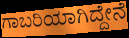
ಗಾಬರಿಯಾಗಿದ್ದೇನೆ